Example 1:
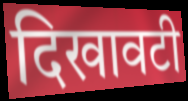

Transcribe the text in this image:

दिखावटी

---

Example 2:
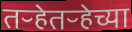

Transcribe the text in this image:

तऱ्हेतऱ्हेच्या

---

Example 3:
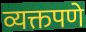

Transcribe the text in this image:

व्यक्तपणे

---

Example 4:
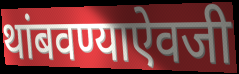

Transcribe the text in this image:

थांबवण्याऐवजी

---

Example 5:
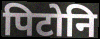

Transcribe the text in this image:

पिटोनि